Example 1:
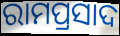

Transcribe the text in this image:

ରାମପ୍ରସାଦ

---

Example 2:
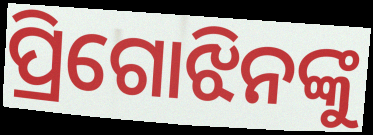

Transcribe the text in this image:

ପ୍ରିଗୋଝିନଙ୍କୁ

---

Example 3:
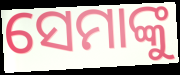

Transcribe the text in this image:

ସେମାଙ୍କୁ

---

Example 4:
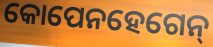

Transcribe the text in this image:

କୋପେନହେଗେନ୍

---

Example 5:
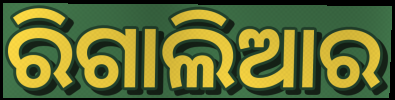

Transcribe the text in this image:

ରିଗାଲିଆର